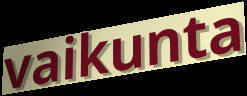
vaikunta